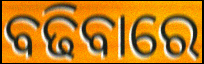
ବଢିବାରେ